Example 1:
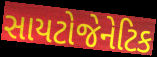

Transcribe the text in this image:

સાયટોજેનેટિક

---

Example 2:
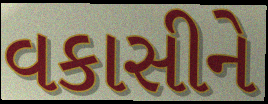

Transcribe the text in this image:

વકાસીને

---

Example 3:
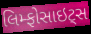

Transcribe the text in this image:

લિમ્ફોસાઇટ્સ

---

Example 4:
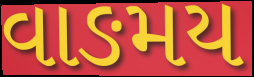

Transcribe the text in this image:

વાઙમય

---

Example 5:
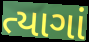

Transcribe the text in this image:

ત્યાગાં